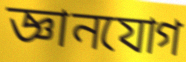
জ্ঞানযোগ